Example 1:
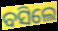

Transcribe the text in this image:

ବସିଲେ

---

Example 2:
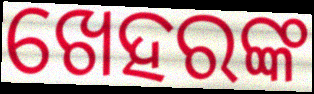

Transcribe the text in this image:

ଖେହରଙ୍କ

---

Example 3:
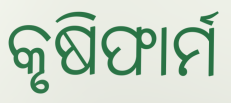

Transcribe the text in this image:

କୃଷିଫାର୍ମ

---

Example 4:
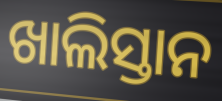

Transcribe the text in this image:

ଖାଲିସ୍ତାନ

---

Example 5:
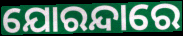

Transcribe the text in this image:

ଯୋରନ୍ଦାରେ